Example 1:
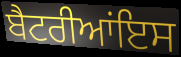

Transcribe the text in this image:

ਬੈਟਰੀਆਂਇਸ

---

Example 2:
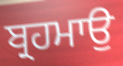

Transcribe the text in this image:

ਬ੍ਰਹਮਾਉ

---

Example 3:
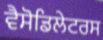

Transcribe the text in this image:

ਵੈਸੋਡਿਲੇਟਰਸ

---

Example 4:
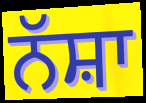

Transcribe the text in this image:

ਨੱਸ਼ਾ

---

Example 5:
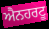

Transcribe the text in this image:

ਐਨਹਰਟੂ